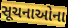
સૂચનાઓના